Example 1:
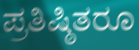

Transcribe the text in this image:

ಪ್ರತಿಷ್ಠಿತರೂ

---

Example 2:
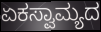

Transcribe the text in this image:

ಏಕಸ್ವಾಮ್ಯದ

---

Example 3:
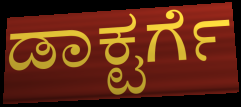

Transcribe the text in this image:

ಡಾಕ್ಟರ್ಗೆ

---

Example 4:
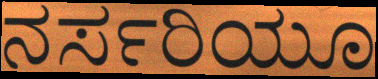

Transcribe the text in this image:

ನರ್ಸರಿಯೂ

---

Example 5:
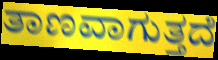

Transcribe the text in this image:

ತಾಣವಾಗುತ್ತದೆ